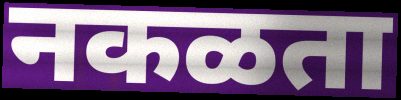
नकळता